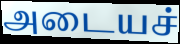
அடையச்